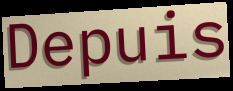
Depuis